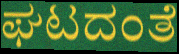
ಘಟದಂತೆ